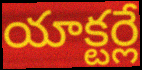
యాక్టర్లే